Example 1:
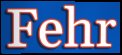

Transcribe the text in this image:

Fehr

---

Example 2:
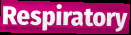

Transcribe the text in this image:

Respiratory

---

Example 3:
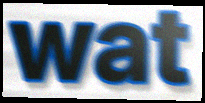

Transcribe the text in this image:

wat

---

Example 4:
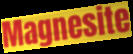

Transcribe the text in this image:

Magnesite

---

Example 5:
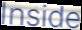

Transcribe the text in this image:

Inside